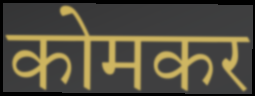
कोमकर